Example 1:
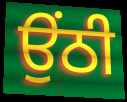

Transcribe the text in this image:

ਉਂਠੀ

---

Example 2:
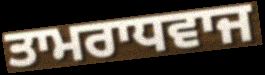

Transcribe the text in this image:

ਤਾਮਰਾਧਵਾਜ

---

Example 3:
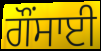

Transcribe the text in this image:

ਗੌਂਸਾਈ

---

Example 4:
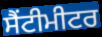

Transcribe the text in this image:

ਸੈਂਟੀਮੀਟਰ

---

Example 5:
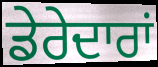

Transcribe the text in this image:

ਡੇਰੇਦਾਰਾਂ